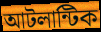
আটলান্টিক